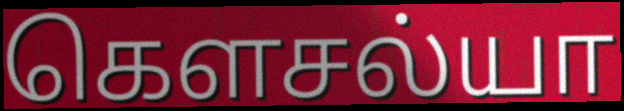
கௌசல்யா